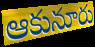
ఆకునూరు